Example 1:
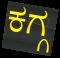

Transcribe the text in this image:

ಕಗ್ಗ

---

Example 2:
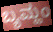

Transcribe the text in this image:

ಬ್ಯಮ್ಹಂ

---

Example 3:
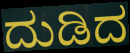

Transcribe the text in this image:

ದುಡಿದ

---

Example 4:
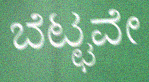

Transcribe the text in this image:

ಬೆಟ್ಟವೇ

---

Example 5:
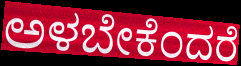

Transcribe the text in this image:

ಅಳಬೇಕೆಂದರೆ